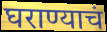
घराण्याचं